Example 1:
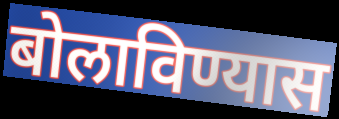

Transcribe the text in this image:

बोलाविण्यास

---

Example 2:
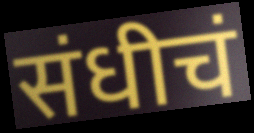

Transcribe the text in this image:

संधीचं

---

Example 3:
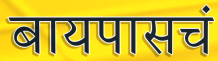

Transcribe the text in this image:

बायपासचं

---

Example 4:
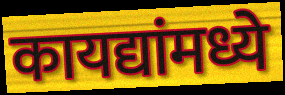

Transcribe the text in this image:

कायद्यांमध्ये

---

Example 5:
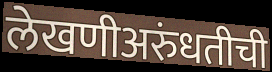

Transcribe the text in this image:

लेखणीअरुंधतीची